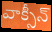
వాక్సీన్